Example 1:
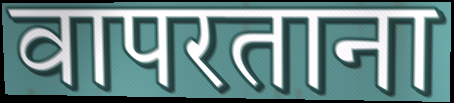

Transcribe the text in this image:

वापरताना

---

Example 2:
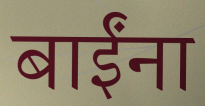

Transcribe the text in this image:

बाईंना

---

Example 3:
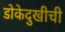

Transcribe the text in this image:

डोकेदुखीची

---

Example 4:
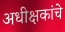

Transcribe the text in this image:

अधीक्षकांचे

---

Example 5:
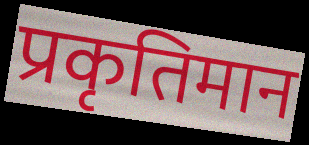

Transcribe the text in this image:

प्रकृतिमान